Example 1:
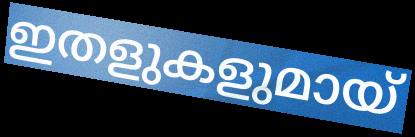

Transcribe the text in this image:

ഇതളുകളുമായ്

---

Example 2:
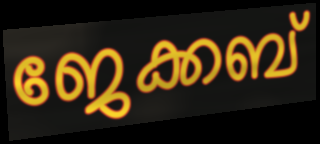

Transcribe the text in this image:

ജേക്കബ്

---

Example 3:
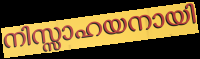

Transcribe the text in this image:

നിസ്സാഹയനായി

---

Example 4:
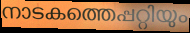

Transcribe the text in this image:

നാടകത്തെപ്പറ്റിയും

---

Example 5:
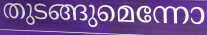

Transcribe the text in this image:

തുടങ്ങുമെന്നോ